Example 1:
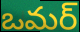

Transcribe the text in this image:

ఒమర్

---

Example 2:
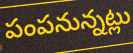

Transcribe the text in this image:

పంపనున్నట్లు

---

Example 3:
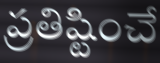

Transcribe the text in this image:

ప్రతిష్టించే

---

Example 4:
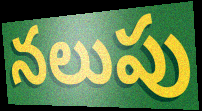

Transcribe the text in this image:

నలుపు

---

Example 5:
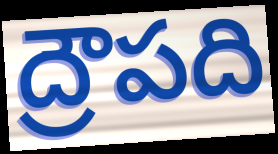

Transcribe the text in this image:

ద్రౌపది